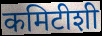
कमिटीशी